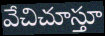
వేచిచూస్తూ